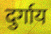
दुर्गाय